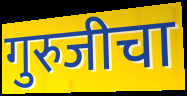
गुरुजीचा